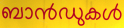
ബാൻഡുകൾ